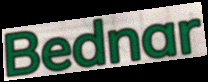
Bednar